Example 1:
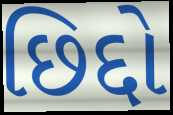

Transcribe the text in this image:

છિદ્દો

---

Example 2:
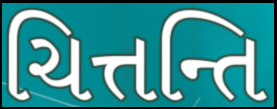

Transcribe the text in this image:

ચિત્તન્તિ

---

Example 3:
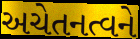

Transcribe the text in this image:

અચેતનત્વને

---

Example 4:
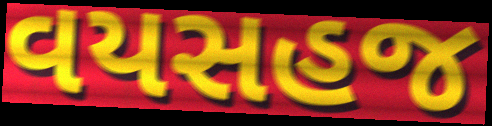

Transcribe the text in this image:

વયસહજ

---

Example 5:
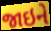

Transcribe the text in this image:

જાઇને